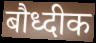
बौध्दीक